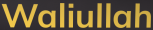
Waliullah